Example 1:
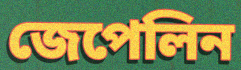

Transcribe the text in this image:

জেপেলিন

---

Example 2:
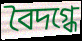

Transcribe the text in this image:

বৈদগ্ধে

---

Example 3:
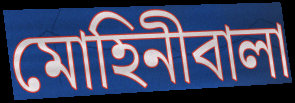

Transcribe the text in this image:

মোহিনীবালা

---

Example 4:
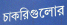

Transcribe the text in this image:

চাকরিগুলোর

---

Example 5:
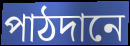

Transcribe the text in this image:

পাঠদানে